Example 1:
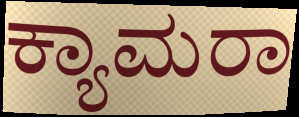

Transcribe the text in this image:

ಕ್ಯಾಮರಾ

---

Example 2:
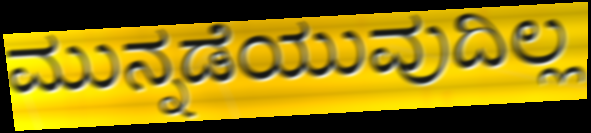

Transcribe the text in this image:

ಮುನ್ನಡೆಯುವುದಿಲ್ಲ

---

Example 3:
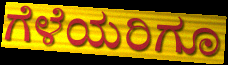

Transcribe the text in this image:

ಗೆಳೆಯರಿಗೂ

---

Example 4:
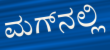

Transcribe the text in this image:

ಮಗ್‌ನಲ್ಲಿ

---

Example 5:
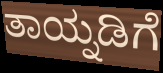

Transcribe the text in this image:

ತಾಯ್ನಡಿಗೆ